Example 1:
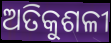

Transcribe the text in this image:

ଅତିକୁଶଳୀ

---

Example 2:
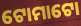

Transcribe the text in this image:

ଟୋମାଟୋ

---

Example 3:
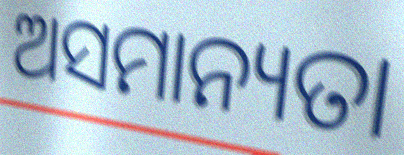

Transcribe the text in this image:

ଅସମାନ୍ୟତା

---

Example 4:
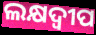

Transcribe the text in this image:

ଲକ୍ଷଦ୍ୱୀପ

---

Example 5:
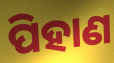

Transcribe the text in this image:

ପିହାଣ